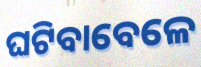
ଘଟିବାବେଳେ